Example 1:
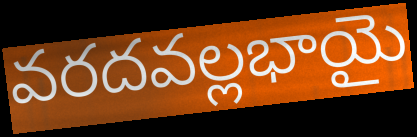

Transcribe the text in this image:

వరదవల్లభాయై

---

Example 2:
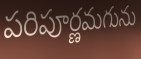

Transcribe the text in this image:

పరిపూర్ణమగును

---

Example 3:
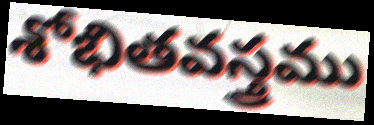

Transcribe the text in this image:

శోభితవస్త్రము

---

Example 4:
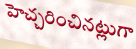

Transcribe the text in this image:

హెచ్చరించినట్లుగా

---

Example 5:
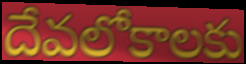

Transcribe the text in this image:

దేవలోకాలకు